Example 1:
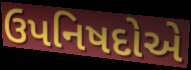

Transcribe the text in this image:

ઉપનિષદોએ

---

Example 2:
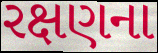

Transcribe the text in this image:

રક્ષણના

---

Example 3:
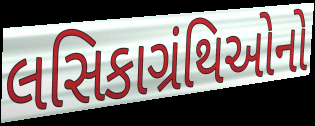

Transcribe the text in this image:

લસિકાગ્રંથિઓનો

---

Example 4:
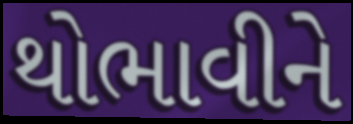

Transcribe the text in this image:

થોભાવીને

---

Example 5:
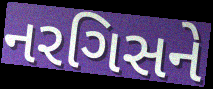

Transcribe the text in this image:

નરગિસને